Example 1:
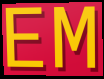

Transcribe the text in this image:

EM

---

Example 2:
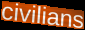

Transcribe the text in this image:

civilians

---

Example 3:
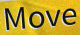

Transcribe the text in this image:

Move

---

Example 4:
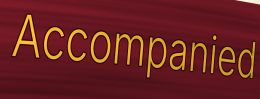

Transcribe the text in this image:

Accompanied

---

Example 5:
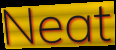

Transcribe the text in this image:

Neat